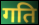
गति